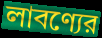
লাবণ্যের